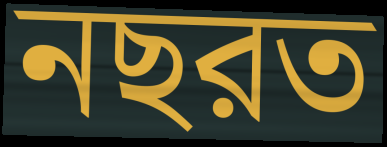
নছরত